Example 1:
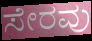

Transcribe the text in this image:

ಸೇರವು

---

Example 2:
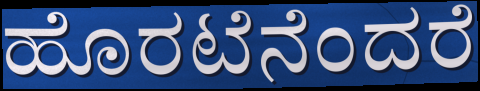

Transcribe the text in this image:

ಹೊರಟೆನೆಂದರೆ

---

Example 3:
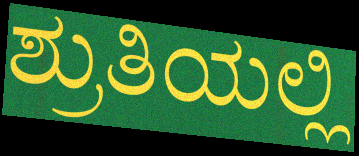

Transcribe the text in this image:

ಶ್ರುತಿಯಲ್ಲಿ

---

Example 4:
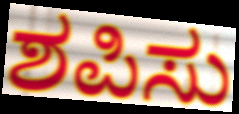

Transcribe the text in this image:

ಶಪಿಸು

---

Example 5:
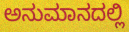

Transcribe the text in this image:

ಅನುಮಾನದಲ್ಲಿ